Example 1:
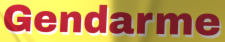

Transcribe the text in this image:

Gendarme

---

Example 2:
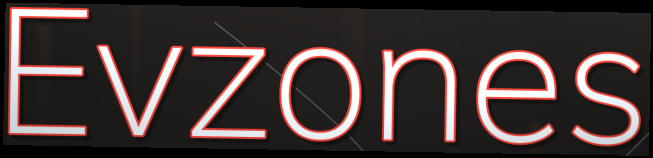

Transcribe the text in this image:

Evzones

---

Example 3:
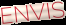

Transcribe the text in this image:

ENVIS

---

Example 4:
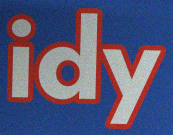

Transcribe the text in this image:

idy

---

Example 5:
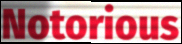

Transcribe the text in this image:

Notorious